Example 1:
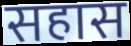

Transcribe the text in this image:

सहास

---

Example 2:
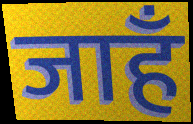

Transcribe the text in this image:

जाहँ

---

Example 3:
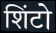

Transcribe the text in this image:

शिंटो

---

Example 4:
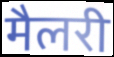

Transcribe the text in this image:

मैलरी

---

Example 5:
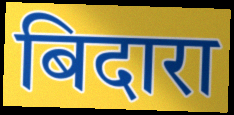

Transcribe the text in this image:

बिदारा